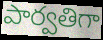
పార్వతిగా